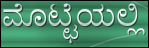
ಮೊಟ್ಟೆಯಲ್ಲಿ